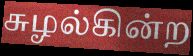
சுழல்கின்ற